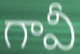
గావీ